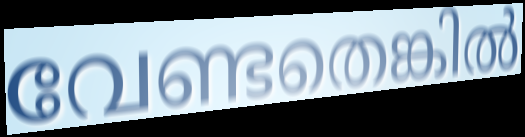
വേണ്ടതെങ്കിൽ